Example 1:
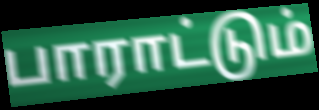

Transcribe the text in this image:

பாராட்டும்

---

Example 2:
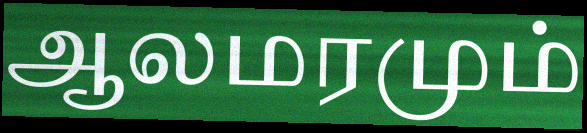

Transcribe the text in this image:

ஆலமரமும்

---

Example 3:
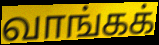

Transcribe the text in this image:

வாங்கக்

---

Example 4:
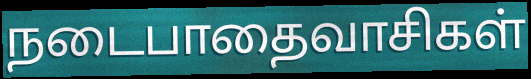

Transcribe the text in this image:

நடைபாதைவாசிகள்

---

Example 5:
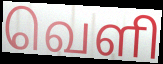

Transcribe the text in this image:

வெளி